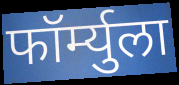
फॉर्म्युला